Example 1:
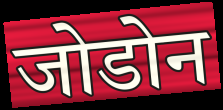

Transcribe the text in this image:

जोडोन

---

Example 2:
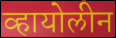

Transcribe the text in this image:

व्हायोलीन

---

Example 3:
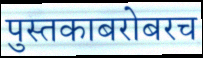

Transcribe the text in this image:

पुस्तकाबरोबरच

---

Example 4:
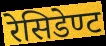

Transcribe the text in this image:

रेसिडेण्ट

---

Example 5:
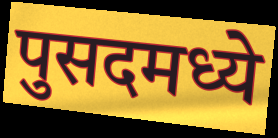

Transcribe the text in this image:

पुसदमध्ये